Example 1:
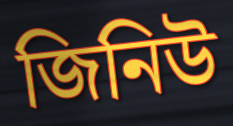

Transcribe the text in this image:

জিনিউ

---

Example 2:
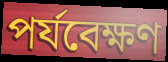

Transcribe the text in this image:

পর্যবেক্ষণ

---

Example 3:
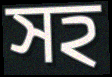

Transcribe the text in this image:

সহ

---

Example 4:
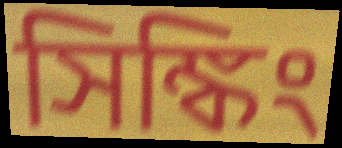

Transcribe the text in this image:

সিঙ্কিং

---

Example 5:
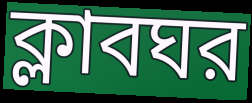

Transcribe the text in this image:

ক্লাবঘর